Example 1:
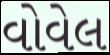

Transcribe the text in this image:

વોવેલ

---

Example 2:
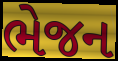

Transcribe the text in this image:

ભેજન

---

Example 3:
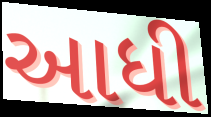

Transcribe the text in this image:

આધી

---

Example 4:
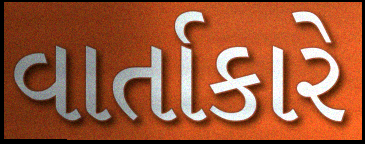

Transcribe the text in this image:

વાર્તાકારે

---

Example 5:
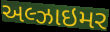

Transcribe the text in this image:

અલ્ઝાઇમર